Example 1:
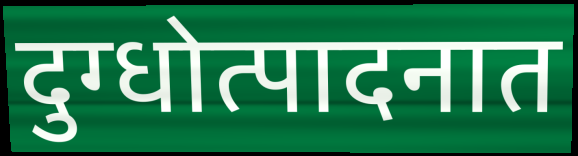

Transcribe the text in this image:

दुग्धोत्पादनात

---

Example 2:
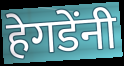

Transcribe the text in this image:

हेगडेंनी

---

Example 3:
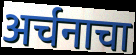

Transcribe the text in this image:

अर्चनाचा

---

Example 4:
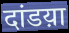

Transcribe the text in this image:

दांडय़ा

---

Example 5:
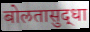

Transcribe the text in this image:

बोलतासुद्धा